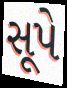
સૂપે